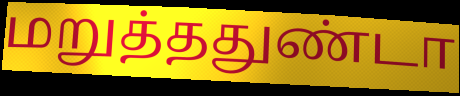
மறுத்ததுண்டா